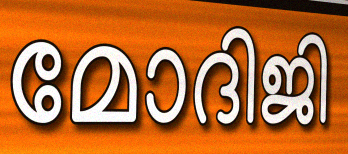
മോദിജി